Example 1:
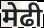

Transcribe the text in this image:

मेढी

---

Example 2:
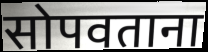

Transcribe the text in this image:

सोपवताना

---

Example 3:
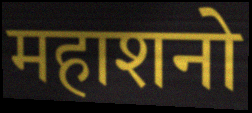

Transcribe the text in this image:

महाशनो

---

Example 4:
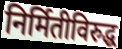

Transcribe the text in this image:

निर्मितीविरुद्ध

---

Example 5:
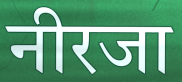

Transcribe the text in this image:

नीरजा